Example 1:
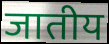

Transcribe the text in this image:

जातीय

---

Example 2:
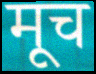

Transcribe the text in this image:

मूच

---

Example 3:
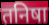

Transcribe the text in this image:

तनिषा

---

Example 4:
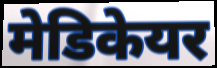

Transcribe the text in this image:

मेडिकेयर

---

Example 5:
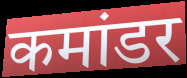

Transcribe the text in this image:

कमांडर